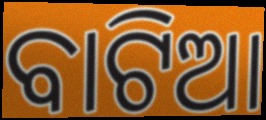
ବାଟିଆ